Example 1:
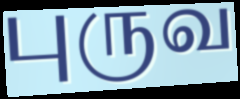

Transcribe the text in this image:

புருவ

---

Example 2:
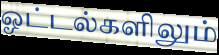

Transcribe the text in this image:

ஓட்டல்களிலும்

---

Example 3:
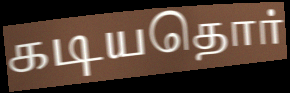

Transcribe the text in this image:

கடியதொர்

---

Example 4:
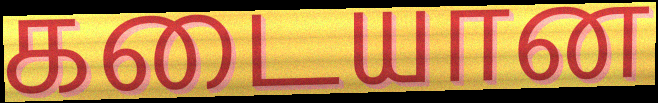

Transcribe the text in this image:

கடையான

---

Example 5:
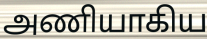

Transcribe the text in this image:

அணியாகிய